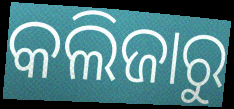
କଲିଜାରୁ